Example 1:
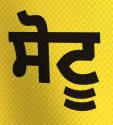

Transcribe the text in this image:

ਸੋਟੂ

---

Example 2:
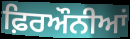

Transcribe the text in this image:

ਫ਼ਿਰਔਨੀਆਂ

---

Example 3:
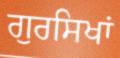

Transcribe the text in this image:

ਗੁਰਸਿਖਾਂ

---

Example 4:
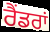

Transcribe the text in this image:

ਰੈਂਡਰਾਂ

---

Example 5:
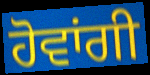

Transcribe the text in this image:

ਹੋਵਾਂਗੀ